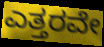
ಎತ್ತರವೇ